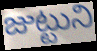
జుట్టుని